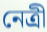
নেত্ৰী